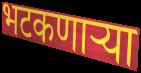
भटकणार्‍या